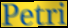
Petri